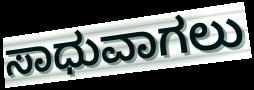
ಸಾಧುವಾಗಲು